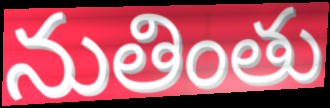
నుతింతు